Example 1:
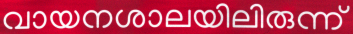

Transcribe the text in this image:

വായനശാലയിലിരുന്ന്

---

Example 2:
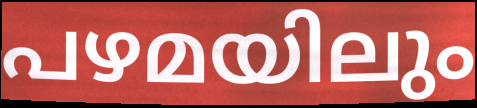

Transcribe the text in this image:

പഴമയിലും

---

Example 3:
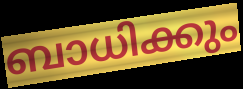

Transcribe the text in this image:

ബാധിക്കും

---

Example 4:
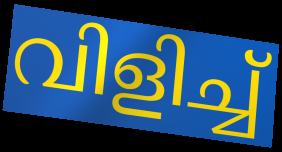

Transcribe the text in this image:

വിളിച്ച്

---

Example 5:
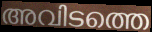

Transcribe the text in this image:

അവിടത്തെ